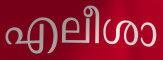
എലീശാ